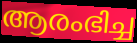
ആരംഭിച്ച